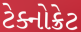
ટેક્નોક્રેટ